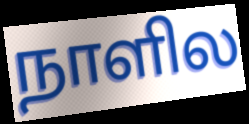
நாளில